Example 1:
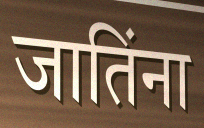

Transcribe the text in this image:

जातिंना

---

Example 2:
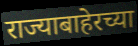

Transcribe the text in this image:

राज्याबाहेरच्या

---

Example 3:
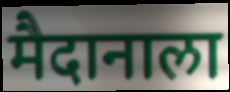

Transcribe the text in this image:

मैदानाला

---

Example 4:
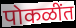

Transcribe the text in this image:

पोकळींत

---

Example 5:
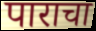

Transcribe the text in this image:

पाराचा